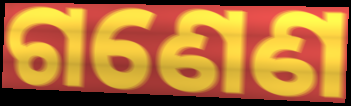
ଗଣେଣ